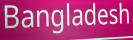
Bangladesh